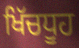
ਖਿੱਚਧੂਹ